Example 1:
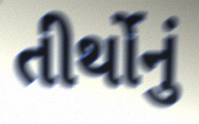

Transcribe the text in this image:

તીર્થોનું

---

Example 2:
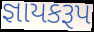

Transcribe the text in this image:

જ્ઞાયકરૂપ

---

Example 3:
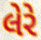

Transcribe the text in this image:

લેરે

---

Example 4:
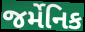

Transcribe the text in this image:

જર્મેનિક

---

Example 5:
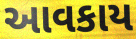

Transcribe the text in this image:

આવકાય